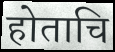
होताचि